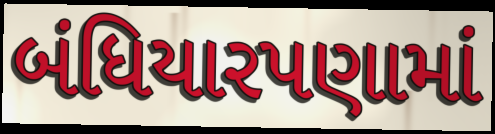
બંધિયારપણામાં